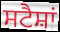
ਸਟੈਸ਼ਾਂ